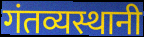
गंतव्यस्थानी